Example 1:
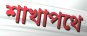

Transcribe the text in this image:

শাখাপথে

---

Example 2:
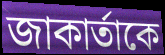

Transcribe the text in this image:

জাকার্তাকে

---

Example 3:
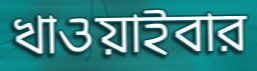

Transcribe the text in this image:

খাওয়াইবার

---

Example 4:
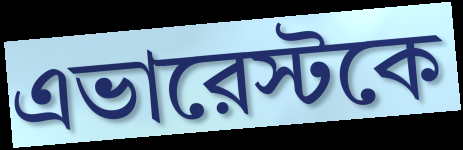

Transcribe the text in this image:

এভারেস্টকে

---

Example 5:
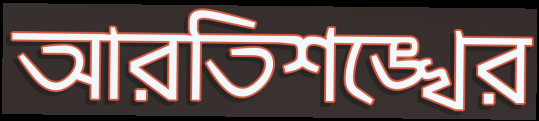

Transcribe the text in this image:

আরতিশঙ্খের